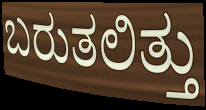
ಬರುತಲಿತ್ತು